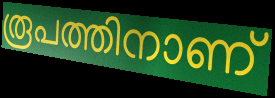
രൂപത്തിനാണ്